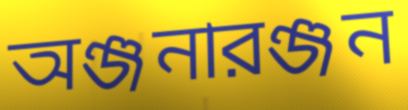
অঞ্জনারঞ্জন